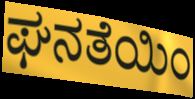
ಘನತೆಯಿಂ